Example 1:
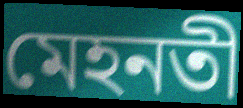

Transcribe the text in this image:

মেহনতী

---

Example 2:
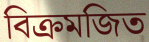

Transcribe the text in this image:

বিক্রমজিত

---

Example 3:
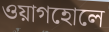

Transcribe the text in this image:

ওয়াগহোলে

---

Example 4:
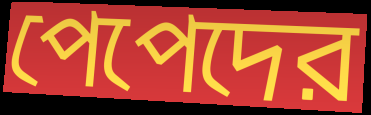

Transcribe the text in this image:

পেপেদের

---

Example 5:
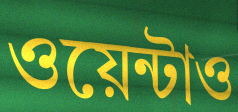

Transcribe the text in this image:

ওয়েন্টাও